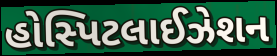
હોસ્પિટલાઈઝેશન